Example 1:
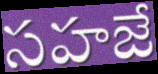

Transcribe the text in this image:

సహజే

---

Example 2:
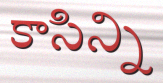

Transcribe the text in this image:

కాసిన్ని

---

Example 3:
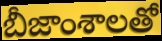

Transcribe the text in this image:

బీజాంశాలతో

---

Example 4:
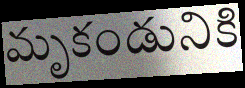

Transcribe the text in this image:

మృకండునికి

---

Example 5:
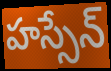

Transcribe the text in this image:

హస్సేన్